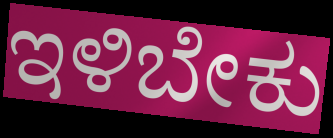
ಇಳಿಬೇಕು